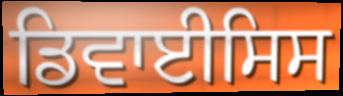
ਡਿਵਾਈਸਿਸ